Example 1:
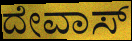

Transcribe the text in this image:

ದೇವಾಸ್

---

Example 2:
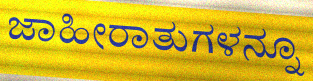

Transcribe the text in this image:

ಜಾಹೀರಾತುಗಳನ್ನೂ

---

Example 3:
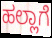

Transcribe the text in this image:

ಹಲ್ಲಾಗೆ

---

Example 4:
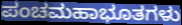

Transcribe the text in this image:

ಪಂಚಮಹಾಭೂತಗಳು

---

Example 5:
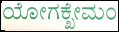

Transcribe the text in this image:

ಯೋಗಕ್ಖೇಮಂ